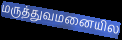
மருத்துவமனையில